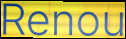
Renou